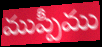
ముప్పీము